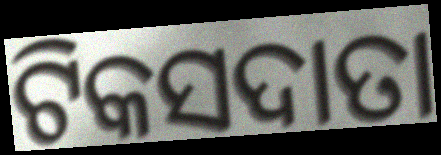
ଟିକସଦାତା